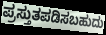
ಪ್ರಸ್ತುತಪಡಿಸಬಹುದು